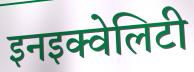
इनइक्वेलिटी